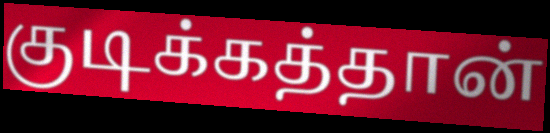
குடிக்கத்தான்